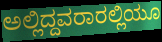
ಅಲ್ಲಿದ್ದವರಾರಲ್ಲಿಯೂ